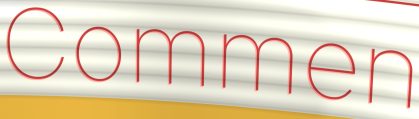
Commen